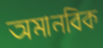
অমানবিক